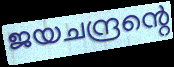
ജയചന്ദ്രന്റെ